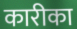
कारीका